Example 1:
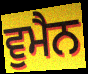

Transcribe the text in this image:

ਵੁਮੈਨ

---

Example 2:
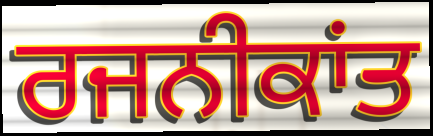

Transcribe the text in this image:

ਰਜਨੀਕਾਂਤ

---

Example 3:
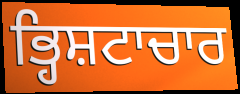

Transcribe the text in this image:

ਭ੍ਹਿਸ਼ਟਾਚਾਰ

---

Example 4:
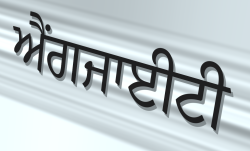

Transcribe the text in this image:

ਐਂਗਜਾਈਟੀ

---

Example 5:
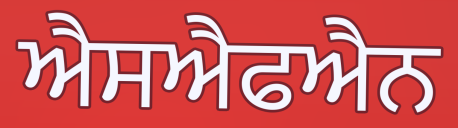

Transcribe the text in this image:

ਐਸਐਫਐਨ